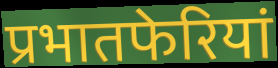
प्रभातफेरियां